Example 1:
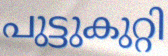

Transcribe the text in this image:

പുട്ടുകുറ്റി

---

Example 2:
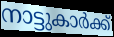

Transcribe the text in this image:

നാട്ടുകാർക്ക്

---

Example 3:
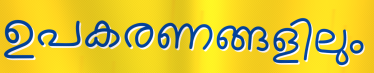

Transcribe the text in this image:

ഉപകരണങ്ങളിലും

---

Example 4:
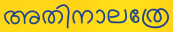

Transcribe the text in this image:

അതിനാലത്രേ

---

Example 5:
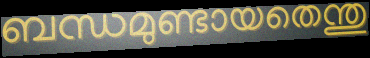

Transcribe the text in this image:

ബന്ധമുണ്ടായതെന്തു